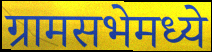
ग्रामसभेमध्ये